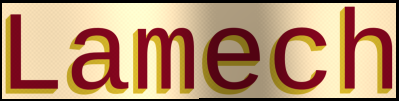
Lamech